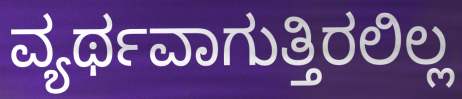
ವ್ಯರ್ಥವಾಗುತ್ತಿರಲಿಲ್ಲ